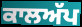
ਕਾਲਅੱਪ